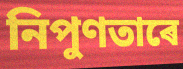
নিপুণতাৰে